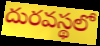
దురవస్థలో